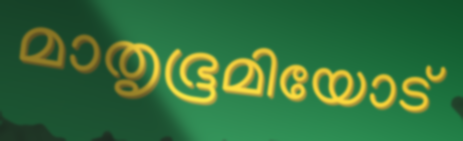
മാതൃഭൂമിയോട്